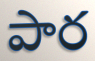
పార